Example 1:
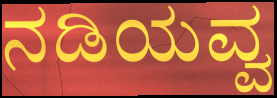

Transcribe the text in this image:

ನಡಿಯವ್ವ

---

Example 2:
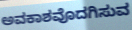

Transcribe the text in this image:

ಅವಕಾಶವೊದಗಿಸುವ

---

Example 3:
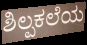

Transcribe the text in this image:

ಶಿಲ್ಪಕಲೆಯ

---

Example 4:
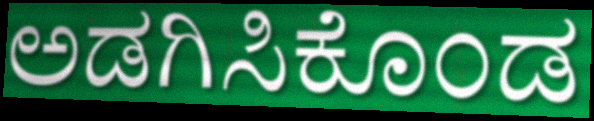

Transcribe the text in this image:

ಅಡಗಿಸಿಕೊಂಡ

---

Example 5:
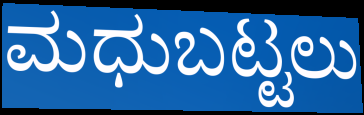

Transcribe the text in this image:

ಮಧುಬಟ್ಟಲು